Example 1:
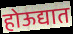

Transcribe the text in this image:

होऊद्यात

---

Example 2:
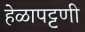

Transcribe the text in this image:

हेळापट्टणी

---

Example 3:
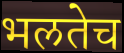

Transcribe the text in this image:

भलतेच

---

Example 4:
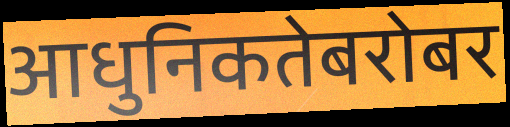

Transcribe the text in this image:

आधुनिकतेबरोबर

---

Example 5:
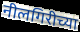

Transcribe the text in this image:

नीलगिरीच्या